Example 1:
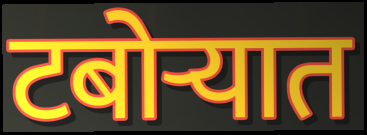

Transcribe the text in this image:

टबोऱ्यात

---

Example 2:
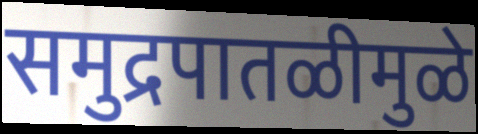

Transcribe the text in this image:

समुद्रपातळीमुळे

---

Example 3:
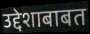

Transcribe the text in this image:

उद्देशाबाबत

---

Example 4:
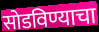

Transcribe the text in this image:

सोडविण्याचा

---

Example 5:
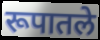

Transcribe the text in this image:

रूपातले